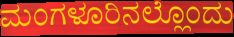
ಮಂಗಳೂರಿನಲ್ಲೊಂದು